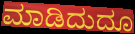
ಮಾಡಿದುದೂ